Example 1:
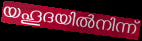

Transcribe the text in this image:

യഹൂദയിൽനിന്ന്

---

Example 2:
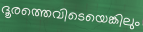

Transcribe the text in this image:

ദൂരത്തെവിടെയെങ്കിലും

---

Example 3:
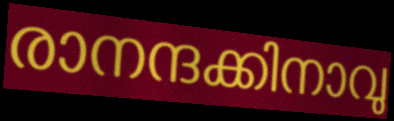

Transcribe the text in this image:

രാനന്ദക്കിനാവു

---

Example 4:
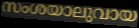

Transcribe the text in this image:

സംശയാലുവായ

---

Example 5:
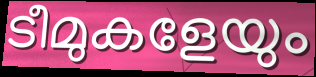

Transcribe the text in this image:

ടീമുകളേയും